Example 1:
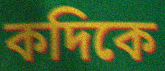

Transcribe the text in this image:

কদিকে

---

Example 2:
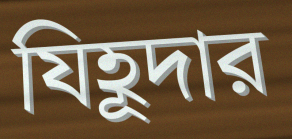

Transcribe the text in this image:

যিহূদার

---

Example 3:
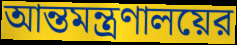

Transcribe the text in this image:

আন্তমন্ত্রণালয়ের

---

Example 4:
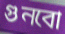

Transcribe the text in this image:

গুনবো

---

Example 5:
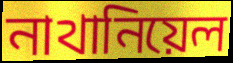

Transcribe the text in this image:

নাথানিয়েল